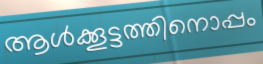
ആൾക്കൂട്ടത്തിനൊപ്പം